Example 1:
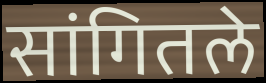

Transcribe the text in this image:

सांगितले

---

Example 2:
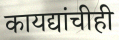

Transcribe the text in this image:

कायद्यांचीही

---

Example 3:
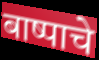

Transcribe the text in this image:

बाष्पाचे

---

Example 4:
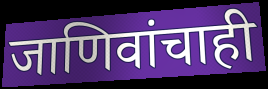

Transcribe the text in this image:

जाणिवांचाही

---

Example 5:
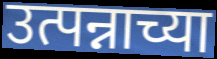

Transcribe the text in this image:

उत्पन्नाच्या